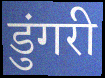
डुंगरी